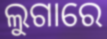
ଲୁଗାରେ